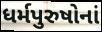
ધર્મપુરુષોનાં